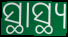
ସ୍ଥାସ୍ଥ୍ୟ